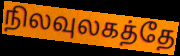
நிலவுலகத்தே